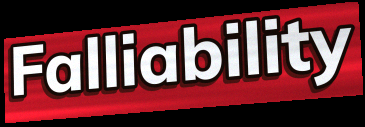
Falliability